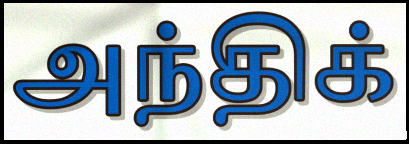
அந்திக்